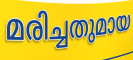
മരിച്ചതുമായ